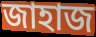
জাহাজ